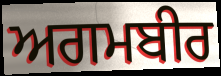
ਅਗਮਬੀਰ